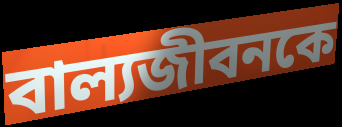
বাল্যজীবনকে